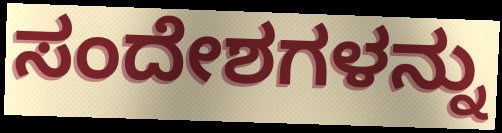
ಸಂದೇಶಗಳನ್ನು